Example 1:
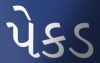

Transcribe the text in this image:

પેકડ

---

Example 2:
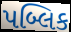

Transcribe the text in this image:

પબ્લિક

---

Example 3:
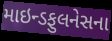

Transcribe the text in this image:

માઇન્ડફુલનેસના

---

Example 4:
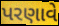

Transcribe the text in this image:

પરણાવે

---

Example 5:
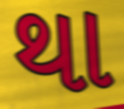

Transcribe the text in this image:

થા